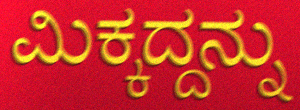
ಮಿಕ್ಕದ್ದನ್ನು